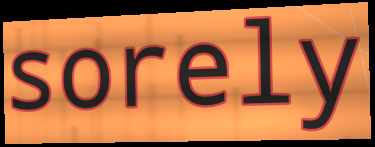
sorely